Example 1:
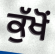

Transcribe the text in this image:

ਕੁੱਖੋਂ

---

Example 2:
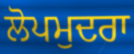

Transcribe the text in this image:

ਲੋਪਮੁਦਰਾ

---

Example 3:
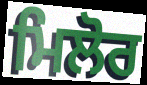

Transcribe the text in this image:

ਮਿਲੋਰ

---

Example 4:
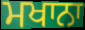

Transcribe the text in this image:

ਮਖਾਨਾ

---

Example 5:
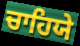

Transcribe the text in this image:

ਚਾਹਿਯੇ